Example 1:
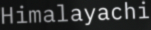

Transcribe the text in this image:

Himalayachi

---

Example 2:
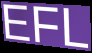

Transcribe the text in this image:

EFL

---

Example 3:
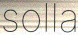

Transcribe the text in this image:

solla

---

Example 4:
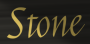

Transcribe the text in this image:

Stone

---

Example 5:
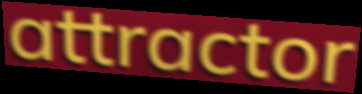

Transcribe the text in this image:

attractor